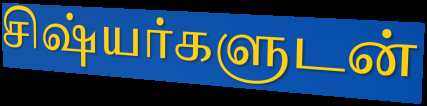
சிஷ்யர்களுடன்